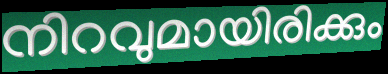
നിറവുമായിരിക്കും